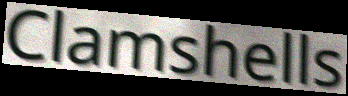
Clamshells